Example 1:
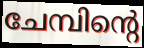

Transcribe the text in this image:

ചേമ്പിന്റെ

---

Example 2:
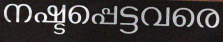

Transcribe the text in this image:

നഷ്ടപ്പെട്ടവരെ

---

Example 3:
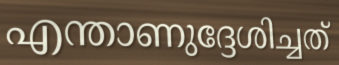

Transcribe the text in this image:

എന്താണുദ്ദേശിച്ചത്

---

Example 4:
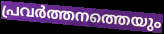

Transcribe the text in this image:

പ്രവർത്തനത്തെയും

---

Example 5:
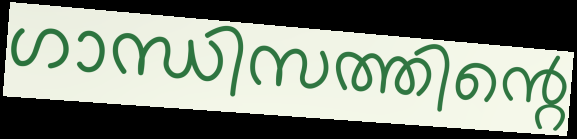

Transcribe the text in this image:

ഗാന്ധിസത്തിന്റെ